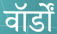
वॉर्डों